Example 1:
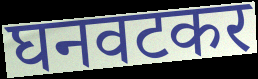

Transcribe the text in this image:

घनवटकर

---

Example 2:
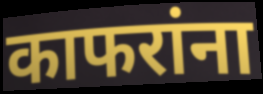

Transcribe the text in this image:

काफरांना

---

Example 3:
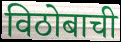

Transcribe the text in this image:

विठोबाची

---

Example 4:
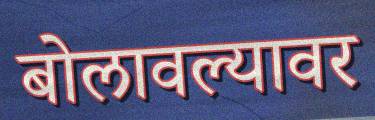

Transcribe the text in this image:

बोलावल्यावर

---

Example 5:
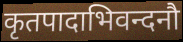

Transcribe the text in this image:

कृतपादाभिवन्दनौ